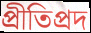
প্রীতিপ্রদ